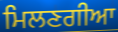
ਮਿਲਣਗੀਆ